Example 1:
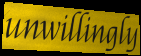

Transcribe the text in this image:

unwillingly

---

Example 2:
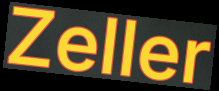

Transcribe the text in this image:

Zeller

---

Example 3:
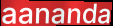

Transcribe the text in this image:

aananda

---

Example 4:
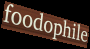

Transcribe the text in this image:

foodophile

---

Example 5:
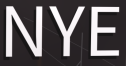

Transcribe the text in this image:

NYE